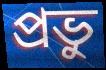
প্রভু